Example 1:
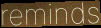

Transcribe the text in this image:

reminds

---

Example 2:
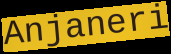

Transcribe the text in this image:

Anjaneri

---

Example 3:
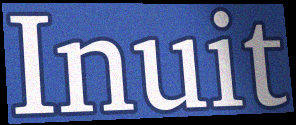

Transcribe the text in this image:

Inuit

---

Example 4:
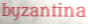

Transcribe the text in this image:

byzantina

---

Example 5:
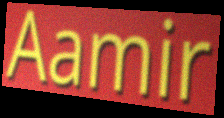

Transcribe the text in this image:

Aamir